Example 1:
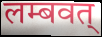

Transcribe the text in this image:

लम्बवत्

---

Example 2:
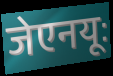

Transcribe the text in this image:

जेएनयूः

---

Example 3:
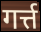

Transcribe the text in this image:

गर्त्त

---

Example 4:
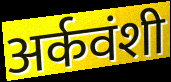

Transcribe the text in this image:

अर्कवंशी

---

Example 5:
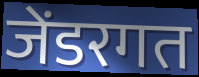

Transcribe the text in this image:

जेंडरगत